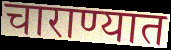
चाराण्यात